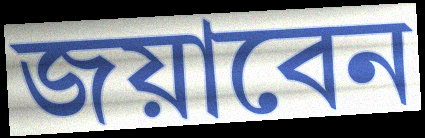
জয়াবেন